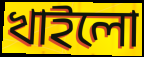
খাইলো